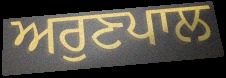
ਅਰੁਣਪਾਲ